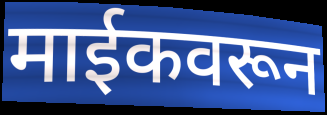
माईकवरून